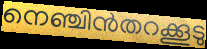
നെഞ്ചിൻതറക്കൂടു